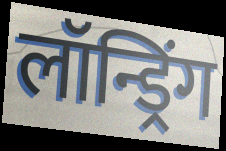
लॉन्ड्रिंग